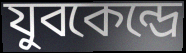
যুবকেন্দ্রে